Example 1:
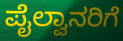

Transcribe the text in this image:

ಪೈಲ್ವಾನರಿಗೆ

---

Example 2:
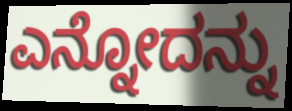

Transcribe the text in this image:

ಎನ್ನೋದನ್ನು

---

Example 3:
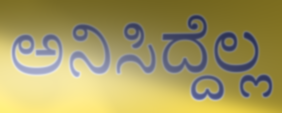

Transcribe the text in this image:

ಅನಿಸಿದ್ದೆಲ್ಲ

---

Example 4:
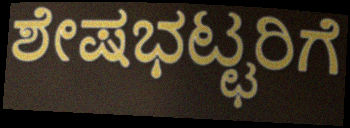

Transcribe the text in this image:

ಶೇಷಭಟ್ಟರಿಗೆ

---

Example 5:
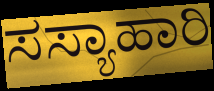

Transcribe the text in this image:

ಸಸ್ಯಾಹಾರಿ